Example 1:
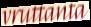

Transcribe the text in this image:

vruttanta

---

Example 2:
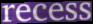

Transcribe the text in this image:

recess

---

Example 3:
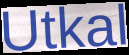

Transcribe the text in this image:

Utkal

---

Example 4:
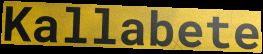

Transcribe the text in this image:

Kallabete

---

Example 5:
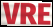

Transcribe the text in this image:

VRE